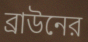
ব্রাউনের